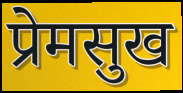
प्रेमसुख